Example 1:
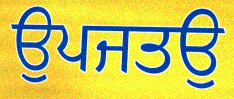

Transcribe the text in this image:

ਉਪਜਤਉ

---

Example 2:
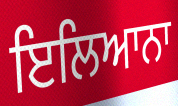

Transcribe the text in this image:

ਇਲਿਆਨਾ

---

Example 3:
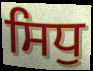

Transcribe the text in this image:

ਸਿਧੁ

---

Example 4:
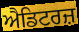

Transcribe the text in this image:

ਐਡਿਟਰਜ਼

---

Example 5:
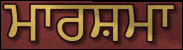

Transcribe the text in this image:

ਮਾਰਸ਼ਮਾ